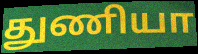
துணியா